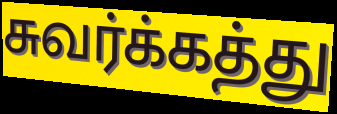
சுவர்க்கத்து